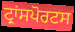
ਟ੍ਰਾਂਸਪੋਰਟਸ